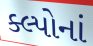
ક્લ્પોનાં